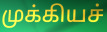
முக்கியச்